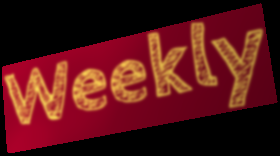
Weekly